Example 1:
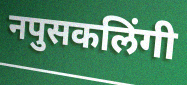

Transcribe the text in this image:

नपुसकलिंगी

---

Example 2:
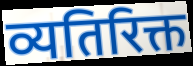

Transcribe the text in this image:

व्यतिरिक्त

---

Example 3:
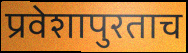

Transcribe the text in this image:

प्रवेशापुरताच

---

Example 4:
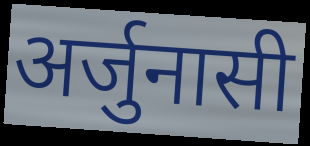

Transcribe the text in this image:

अर्जुनासी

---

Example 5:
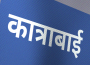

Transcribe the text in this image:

कात्राबाई